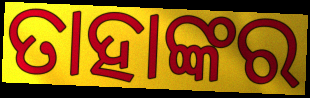
ତାହାଙ୍କର